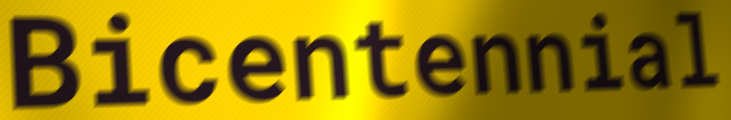
Bicentennial